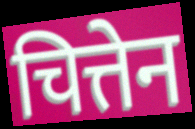
चित्तेन